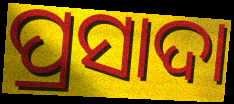
ପ୍ରସାଦା